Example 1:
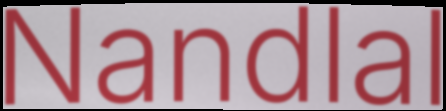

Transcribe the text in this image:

Nandlal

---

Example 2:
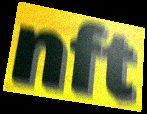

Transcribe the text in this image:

nft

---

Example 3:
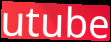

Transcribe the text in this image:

utube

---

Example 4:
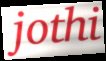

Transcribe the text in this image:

jothi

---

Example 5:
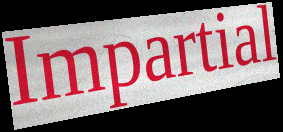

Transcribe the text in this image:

Impartial